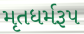
મૃતધર્મરૂપ